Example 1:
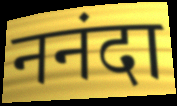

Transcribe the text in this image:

ननंदा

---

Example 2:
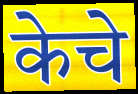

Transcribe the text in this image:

केचे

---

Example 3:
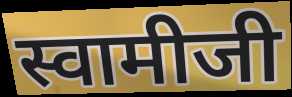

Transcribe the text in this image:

स्वामीजी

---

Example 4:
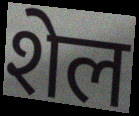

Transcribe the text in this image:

शेल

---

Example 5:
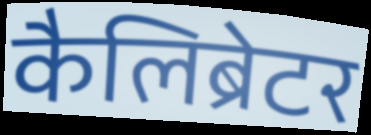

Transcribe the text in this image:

कैलिब्रेटर